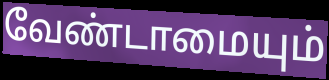
வேண்டாமையும்